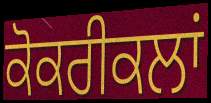
ਕੋਕਰੀਕਲਾਂ